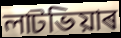
লাটভিয়াৰ